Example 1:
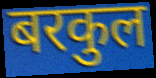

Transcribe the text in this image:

बरकुल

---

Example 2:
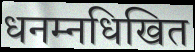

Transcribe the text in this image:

धनम्नधिखित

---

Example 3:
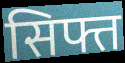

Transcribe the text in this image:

सिफ्त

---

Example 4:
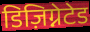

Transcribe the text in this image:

डिज़िग्नेटेड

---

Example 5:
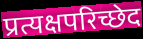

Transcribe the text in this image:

प्रत्यक्षपरिच्छेद